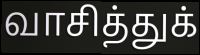
வாசித்துக்